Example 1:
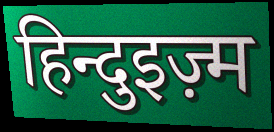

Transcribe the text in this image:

हिन्दुइज़्म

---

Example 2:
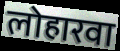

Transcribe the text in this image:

लोहारवा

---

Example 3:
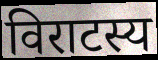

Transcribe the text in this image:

विराटस्य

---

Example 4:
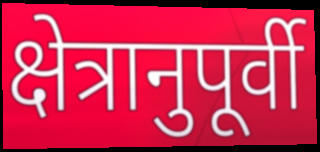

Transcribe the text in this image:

क्षेत्रानुपूर्वी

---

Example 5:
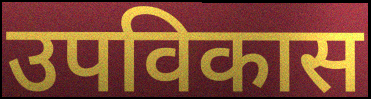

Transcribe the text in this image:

उपविकास